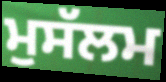
ਮੁਸੱਲਮ